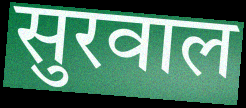
सुरवाल